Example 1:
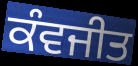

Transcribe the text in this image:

ਕੰਵਜੀਤ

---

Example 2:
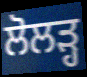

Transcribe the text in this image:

ਲੋਲੜ੍ਹ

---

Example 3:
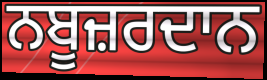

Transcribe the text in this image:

ਨਬੂਜ਼ਰਦਾਨ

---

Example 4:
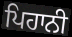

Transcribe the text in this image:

ਪਿਹਾਨੀ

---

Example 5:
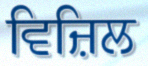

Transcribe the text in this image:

ਵਿਜ਼ਿਲ